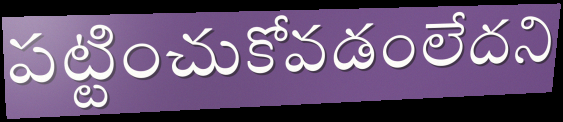
పట్టించుకోవడంలేదని